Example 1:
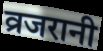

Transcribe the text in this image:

व्रजरानी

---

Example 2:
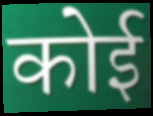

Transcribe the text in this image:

कोई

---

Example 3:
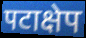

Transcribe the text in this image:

पटाक्षेप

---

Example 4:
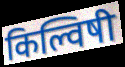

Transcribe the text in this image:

किल्विषी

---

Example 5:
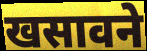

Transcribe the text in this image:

खसावने